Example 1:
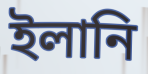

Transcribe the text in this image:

ইলানি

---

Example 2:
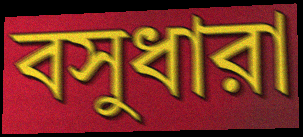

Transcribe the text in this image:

বসুধারা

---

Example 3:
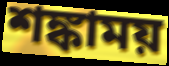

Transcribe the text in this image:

শঙ্কাময়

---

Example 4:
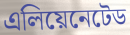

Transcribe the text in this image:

এলিয়েনেটেড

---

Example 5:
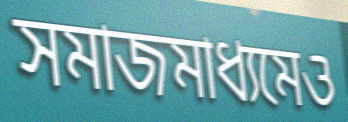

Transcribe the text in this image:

সমাজমাধ্যমেও